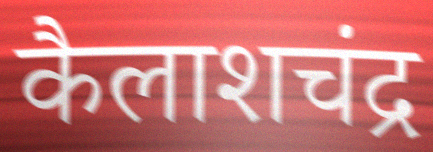
कैलाशचंद्र